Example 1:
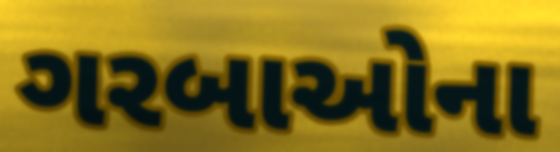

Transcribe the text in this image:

ગરબાઓના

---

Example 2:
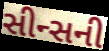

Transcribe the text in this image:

સીન્સની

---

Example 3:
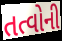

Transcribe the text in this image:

તત્વોની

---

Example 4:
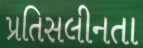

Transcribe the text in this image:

પ્રતિસલીનતા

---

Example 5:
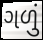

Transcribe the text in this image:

ગળું